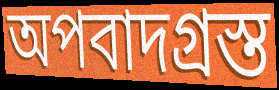
অপবাদগ্রস্ত